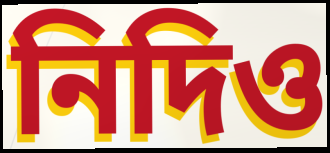
নিদিও